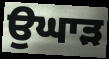
ਉਘਾੜ